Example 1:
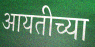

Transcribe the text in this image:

आयतीच्या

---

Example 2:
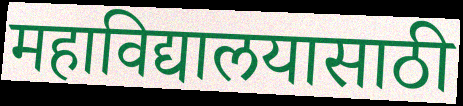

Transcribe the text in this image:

महाविद्यालयासाठी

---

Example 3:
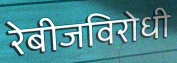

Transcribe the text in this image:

रेबीजविरोधी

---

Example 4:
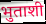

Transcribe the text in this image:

भुताशी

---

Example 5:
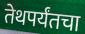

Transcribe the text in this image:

तेथपर्यंतचा